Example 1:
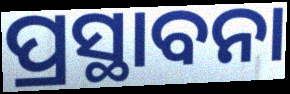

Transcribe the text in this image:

ପ୍ରସ୍ଥାବନା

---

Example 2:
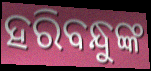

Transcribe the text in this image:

ହରିବନ୍ଧୁଙ୍କ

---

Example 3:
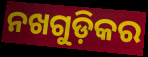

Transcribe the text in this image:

ନଖଗୁଡ଼ିକର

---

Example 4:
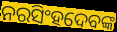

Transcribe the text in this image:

ନରସିଂହଦେବଙ୍କ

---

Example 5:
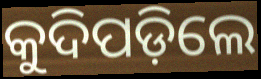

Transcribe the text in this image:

କୁଦିପଡ଼ିଲେ